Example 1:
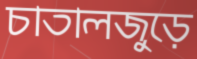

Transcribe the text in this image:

চাতালজুড়ে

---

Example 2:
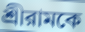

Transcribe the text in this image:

শ্রীরামকে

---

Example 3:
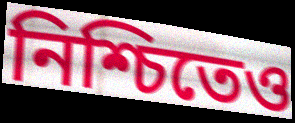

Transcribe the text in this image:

নিশ্চিতেও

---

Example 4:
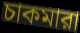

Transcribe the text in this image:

চাকমারা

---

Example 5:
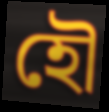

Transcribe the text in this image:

হৌ